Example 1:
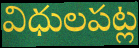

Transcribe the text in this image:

విధులపట్ల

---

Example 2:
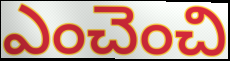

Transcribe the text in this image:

ఎంచెంచి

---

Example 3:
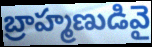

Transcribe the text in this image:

బ్రాహ్మణుడివై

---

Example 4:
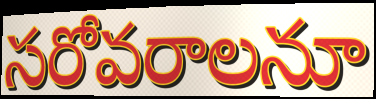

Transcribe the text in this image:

సరోవరాలనూ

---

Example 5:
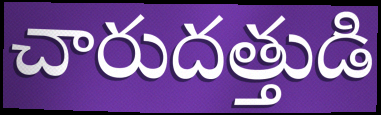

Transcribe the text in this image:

చారుదత్తుడి